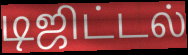
டிஜிட்டல்